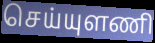
செய்யுளணி